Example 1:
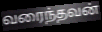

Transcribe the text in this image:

வரைந்தவன்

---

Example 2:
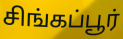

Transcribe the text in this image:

சிங்கப்பூர்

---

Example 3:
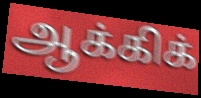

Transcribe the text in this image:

ஆக்கிக்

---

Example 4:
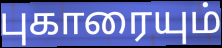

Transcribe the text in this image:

புகாரையும்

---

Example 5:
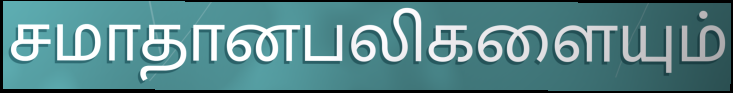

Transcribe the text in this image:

சமாதானபலிகளையும்